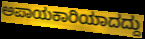
ಅಪಾಯಕಾರಿಯಾದದ್ದು